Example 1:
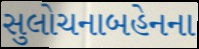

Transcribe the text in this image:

સુલોચનાબહેનના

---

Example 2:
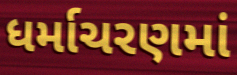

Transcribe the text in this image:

ધર્માચરણમાં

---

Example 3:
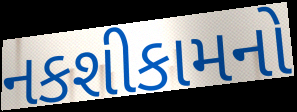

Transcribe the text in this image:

નકશીકામનો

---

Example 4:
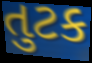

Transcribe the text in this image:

તુટક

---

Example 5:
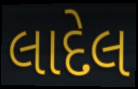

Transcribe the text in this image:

લાદેલ